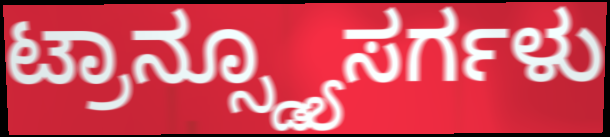
ಟ್ರಾನ್ಸ್ಡ್ಯೂಸರ್ಗಳು